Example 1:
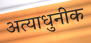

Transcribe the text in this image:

अत्याधुनीक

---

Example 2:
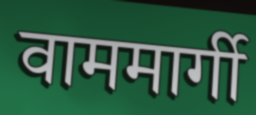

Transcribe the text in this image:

वाममार्गी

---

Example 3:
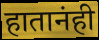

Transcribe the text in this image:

हातानंही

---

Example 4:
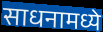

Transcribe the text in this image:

साधनामध्ये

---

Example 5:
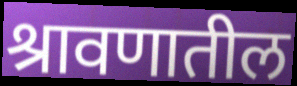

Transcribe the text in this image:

श्रावणातील